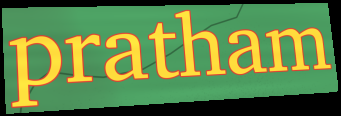
pratham